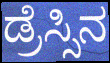
ಡ್ರೆಸ್ಸಿನ